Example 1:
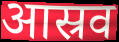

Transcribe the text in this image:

आस्रव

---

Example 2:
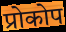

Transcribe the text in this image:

प्रोकोप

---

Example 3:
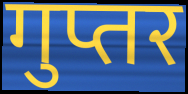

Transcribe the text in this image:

गुप्तर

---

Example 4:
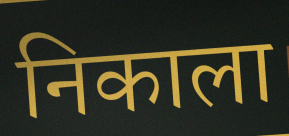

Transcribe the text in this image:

निकाला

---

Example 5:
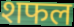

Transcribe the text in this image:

शफल